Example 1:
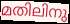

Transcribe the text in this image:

മതിലിനു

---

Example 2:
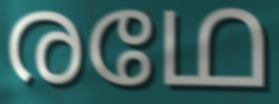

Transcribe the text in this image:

രഥേ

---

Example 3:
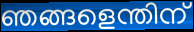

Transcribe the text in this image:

ഞങ്ങളെന്തിന്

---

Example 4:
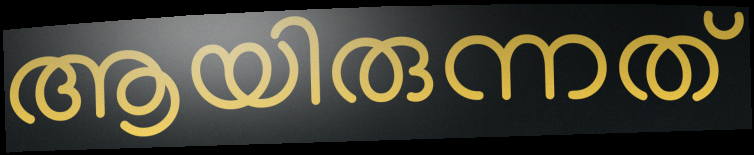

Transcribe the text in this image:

ആയിരുന്നത്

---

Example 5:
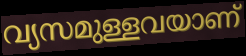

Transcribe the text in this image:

വ്യസമുള്ളവയാണ്